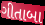
ગીતાબા